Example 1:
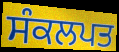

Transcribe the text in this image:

ਸੰਕਲਪਤ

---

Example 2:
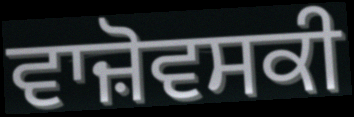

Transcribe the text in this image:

ਵਾਜ਼ੋਵਸਕੀ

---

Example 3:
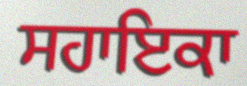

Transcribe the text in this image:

ਸਹਾਇਕਾ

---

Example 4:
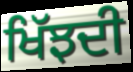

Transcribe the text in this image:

ਖਿੱਝਦੀ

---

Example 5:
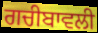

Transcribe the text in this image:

ਗਚੀਬਾਵਲੀ